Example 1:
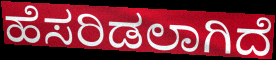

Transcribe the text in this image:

ಹೆಸರಿಡಲಾಗಿದೆ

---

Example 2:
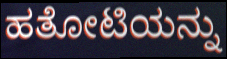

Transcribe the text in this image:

ಹತೋಟಿಯನ್ನು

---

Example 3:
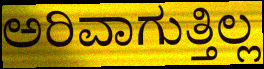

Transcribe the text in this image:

ಅರಿವಾಗುತ್ತಿಲ್ಲ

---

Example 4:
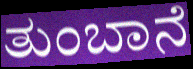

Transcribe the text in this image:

ತುಂಬಾನೆ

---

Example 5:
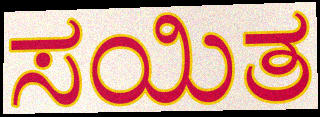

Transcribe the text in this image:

ಸಯಿತ